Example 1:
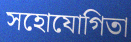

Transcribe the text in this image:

সহোযোগিতা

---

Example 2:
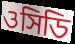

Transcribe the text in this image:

ওসিডি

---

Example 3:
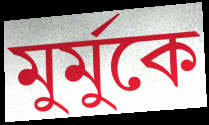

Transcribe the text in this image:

মুর্মুকে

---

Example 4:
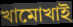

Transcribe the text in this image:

খামোখাই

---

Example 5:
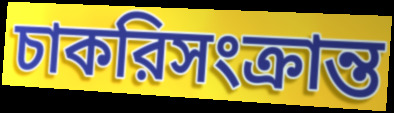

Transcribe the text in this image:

চাকরিসংক্রান্ত